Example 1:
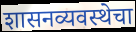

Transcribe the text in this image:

शासनव्यवस्थेचा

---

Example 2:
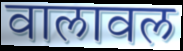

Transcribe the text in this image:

वालावल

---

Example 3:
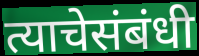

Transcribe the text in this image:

त्याचेसंबंधी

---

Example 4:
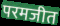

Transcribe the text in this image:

परमजीत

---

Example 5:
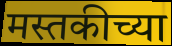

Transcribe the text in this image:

मस्तकीच्या